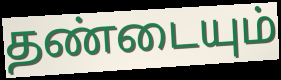
தண்டையும்